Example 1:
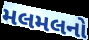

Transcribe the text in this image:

મલમલનો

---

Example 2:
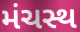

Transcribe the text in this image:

મંચસ્થ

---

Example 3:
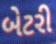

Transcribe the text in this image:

બેટરી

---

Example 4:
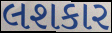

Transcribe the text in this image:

લશકાર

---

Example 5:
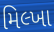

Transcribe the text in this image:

મિલ્ખા